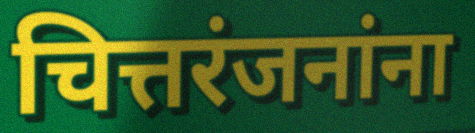
चित्तरंजनांना